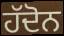
ਹੱਦੋਨ